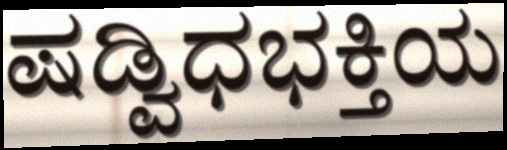
ಷಡ್ವಿಧಭಕ್ತಿಯ